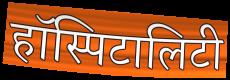
हॉस्पिटालिटी